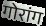
गोरांग